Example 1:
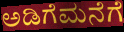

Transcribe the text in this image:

ಅಡಿಗೆಮನೆಗೆ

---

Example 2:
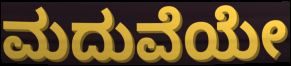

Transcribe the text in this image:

ಮದುವೆಯೇ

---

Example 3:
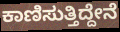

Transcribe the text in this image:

ಕಾಣಿಸುತ್ತಿದ್ದೇನೆ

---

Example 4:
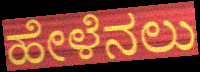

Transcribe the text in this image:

ಹೇಳೆನಲು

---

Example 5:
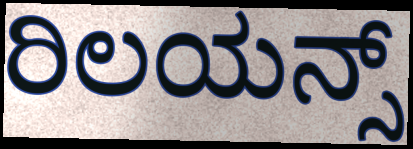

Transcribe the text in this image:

ರಿಲಯನ್ಸ್